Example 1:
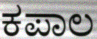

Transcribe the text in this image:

ಕಪಾಲ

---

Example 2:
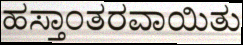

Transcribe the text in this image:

ಹಸ್ತಾಂತರವಾಯಿತು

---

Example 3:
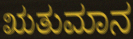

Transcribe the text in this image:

ಋತುಮಾನ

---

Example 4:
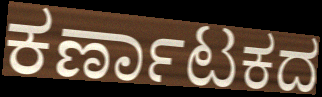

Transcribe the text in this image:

ಕರ್ಣಾಟಕದ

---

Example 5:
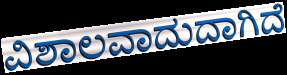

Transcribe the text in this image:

ವಿಶಾಲವಾದುದಾಗಿದೆ